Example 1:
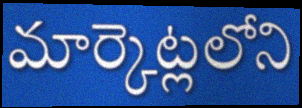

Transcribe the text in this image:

మార్కెట్లలోని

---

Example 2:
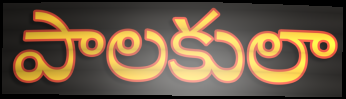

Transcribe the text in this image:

పాలకులా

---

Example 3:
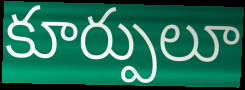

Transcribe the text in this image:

కూర్పులూ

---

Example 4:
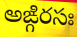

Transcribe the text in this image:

అఙ్గిరసః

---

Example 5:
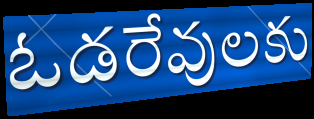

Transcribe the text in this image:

ఓడరేవులకు